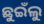
ଛୁଇଁଲୁ